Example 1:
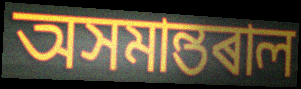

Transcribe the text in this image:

অসমান্তৰাল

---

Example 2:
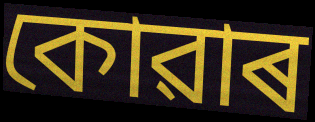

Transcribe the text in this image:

কোৱাৰ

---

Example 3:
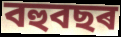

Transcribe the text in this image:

বহুবছৰ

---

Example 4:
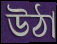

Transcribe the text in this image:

উঠা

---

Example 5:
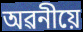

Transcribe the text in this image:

অৱনীয়ে